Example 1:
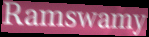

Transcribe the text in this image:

Ramswamy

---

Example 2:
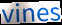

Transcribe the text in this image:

vines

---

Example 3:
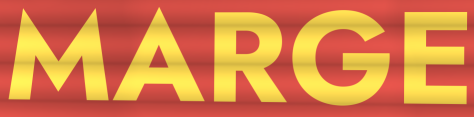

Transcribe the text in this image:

MARGE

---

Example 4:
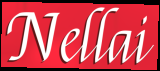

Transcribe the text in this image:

Nellai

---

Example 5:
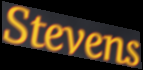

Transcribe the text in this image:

Stevens